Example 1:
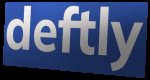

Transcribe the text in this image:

deftly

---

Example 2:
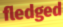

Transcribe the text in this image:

fledged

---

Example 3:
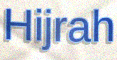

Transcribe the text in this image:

Hijrah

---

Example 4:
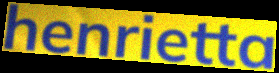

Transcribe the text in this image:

henrietta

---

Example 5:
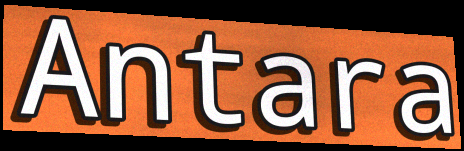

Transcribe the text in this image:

Antara